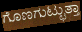
ಗೊಣಗುಟ್ಟುತ್ತಾ